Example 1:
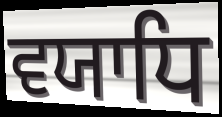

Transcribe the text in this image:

ਵਯਾਧਿ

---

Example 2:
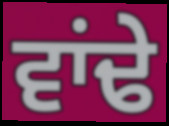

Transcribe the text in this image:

ਵਾਂਢੇ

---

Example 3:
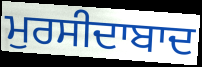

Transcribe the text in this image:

ਮੁਰਸੀਦਾਬਾਦ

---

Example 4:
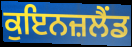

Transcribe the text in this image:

ਕੁਇਨਜ਼ਲੈਂਡ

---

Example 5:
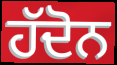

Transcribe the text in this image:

ਹੱਦੋਨ